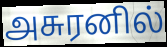
அசுரனில்